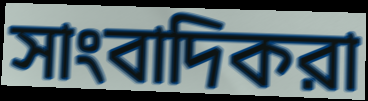
সাংবাদিকরা